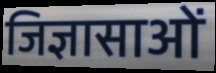
जिज्ञासाओं